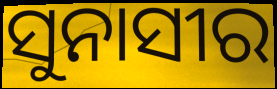
ସୁନାସୀର